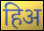
हिअ